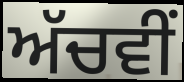
ਅੱਚਵੀਂ